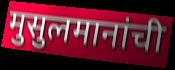
मुसुलमानांची